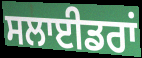
ਸਲਾਈਡਰਾਂ